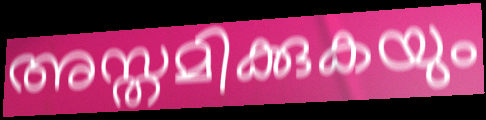
അസ്തമിക്കുകയും